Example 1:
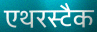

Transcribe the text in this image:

एथरस्टैक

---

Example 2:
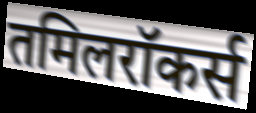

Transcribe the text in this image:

तमिलरॉकर्स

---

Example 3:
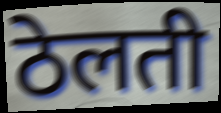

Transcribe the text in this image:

ठेलती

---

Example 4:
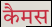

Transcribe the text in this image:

कैमस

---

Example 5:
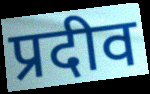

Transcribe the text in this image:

प्रदीव